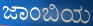
ಜಾಂಬಿಯ